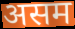
असम